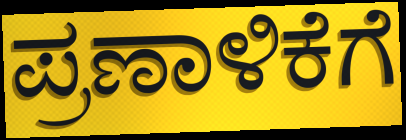
ಪ್ರಣಾಳಿಕೆಗೆ